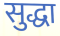
सुद्धा